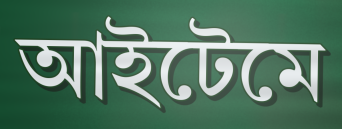
আইটেমে